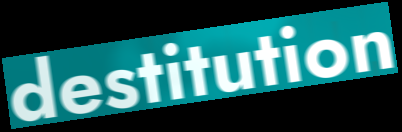
destitution